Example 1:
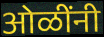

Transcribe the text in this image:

ओळींनी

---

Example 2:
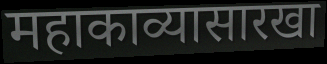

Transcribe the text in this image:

महाकाव्यासारखा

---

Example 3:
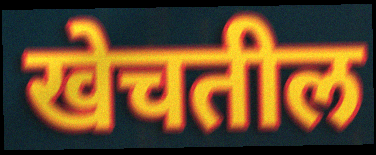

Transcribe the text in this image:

खेचतील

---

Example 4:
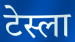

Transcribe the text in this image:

टेस्ला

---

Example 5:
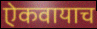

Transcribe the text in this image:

ऐकवायाच